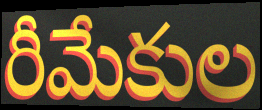
రీమేకుల